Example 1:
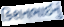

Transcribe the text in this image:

કિશનભાઈનું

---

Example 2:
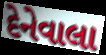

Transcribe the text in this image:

દેનેવાલા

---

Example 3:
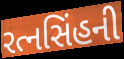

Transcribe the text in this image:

રત્નસિંહની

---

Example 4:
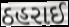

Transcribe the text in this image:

ઠહરાઈ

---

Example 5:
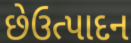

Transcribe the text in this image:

છેઉત્પાદન